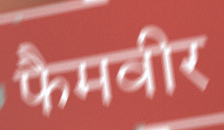
फैमवीर